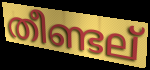
തീണ്ടല്